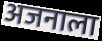
अजनाला